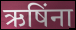
ऋषिंना